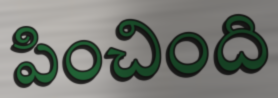
పించింది